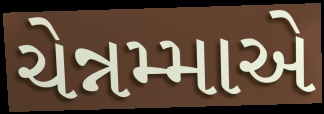
ચેન્નમ્માએ